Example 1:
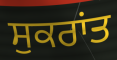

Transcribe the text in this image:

ਸੁਕਰਾਂਤ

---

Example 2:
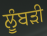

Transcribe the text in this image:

ਲੂੰਬੜੀ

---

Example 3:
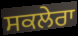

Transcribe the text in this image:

ਸਕਲੇਰਾ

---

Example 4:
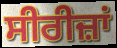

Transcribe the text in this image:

ਸੀਰੀਜ਼ਾਂ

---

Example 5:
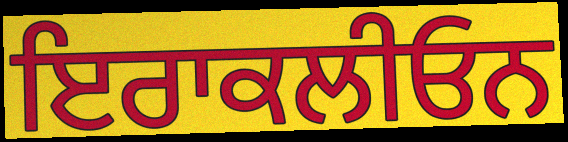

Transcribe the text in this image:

ਇਰਾਕਲੀਓਨ